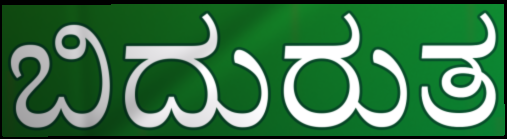
ಬಿದುರುತ